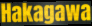
Hakagawa